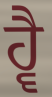
ਹ੍ਵੈ